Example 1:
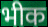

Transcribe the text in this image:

भीक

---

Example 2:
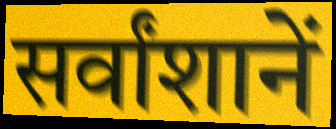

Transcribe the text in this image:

सर्वांशानें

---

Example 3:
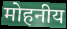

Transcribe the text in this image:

मोहनीय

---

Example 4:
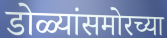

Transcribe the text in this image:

डोळ्यांसमोरच्या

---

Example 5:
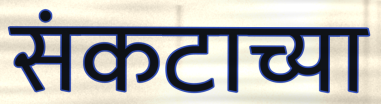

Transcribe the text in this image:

संकटाच्या